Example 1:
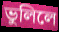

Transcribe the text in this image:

ভুলিলে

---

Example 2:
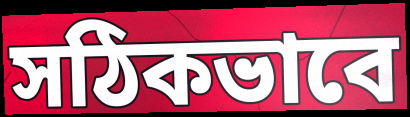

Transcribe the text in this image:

সঠিকভাবে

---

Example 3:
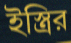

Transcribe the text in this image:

ইস্ত্রির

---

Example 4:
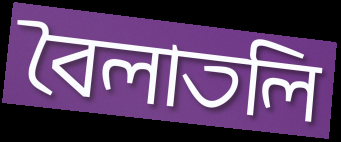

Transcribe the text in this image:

বৈলাতলি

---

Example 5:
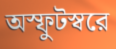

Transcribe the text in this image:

অস্ফুটস্বরে